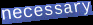
necessary